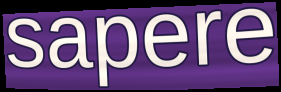
sapere